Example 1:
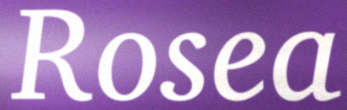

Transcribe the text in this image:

Rosea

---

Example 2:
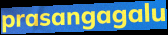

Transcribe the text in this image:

prasangagalu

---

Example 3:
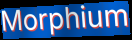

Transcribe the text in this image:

Morphium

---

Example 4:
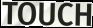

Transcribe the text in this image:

TOUCH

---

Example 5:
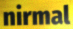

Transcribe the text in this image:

nirmal